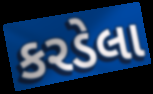
કરડેલા